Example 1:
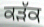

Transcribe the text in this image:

ਕੜੱਕ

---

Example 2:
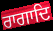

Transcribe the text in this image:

ਰਾਗਾਦਿ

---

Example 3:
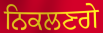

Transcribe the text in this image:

ਨਿਕਲਣਗੇ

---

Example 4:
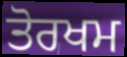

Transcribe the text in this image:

ਤੋਰਖਮ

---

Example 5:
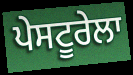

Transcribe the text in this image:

ਪੇਸਟੂਰੇਲਾ